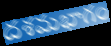
దశమభాగం